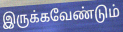
இருக்கவேண்டும்